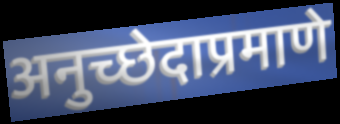
अनुच्छेदाप्रमाणे